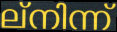
ല്നിന്ന്